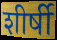
शीर्षी